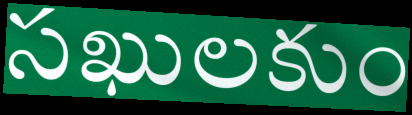
సఖులకుం